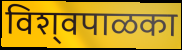
विश्वपाळका